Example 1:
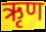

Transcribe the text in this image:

ऋृण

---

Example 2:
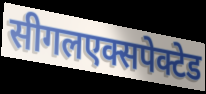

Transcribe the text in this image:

सीगलएक्सपेक्टेड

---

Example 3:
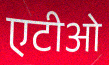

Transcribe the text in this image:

एटीओ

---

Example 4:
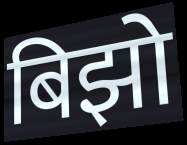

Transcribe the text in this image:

बिझो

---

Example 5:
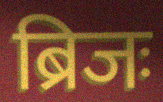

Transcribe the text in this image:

ब्रिजः